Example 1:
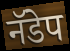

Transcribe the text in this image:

नॅडेप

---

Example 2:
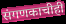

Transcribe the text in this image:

संगणकाचीही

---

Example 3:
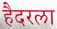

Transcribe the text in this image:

हैदरला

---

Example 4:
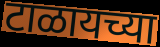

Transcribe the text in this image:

टाळायच्या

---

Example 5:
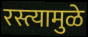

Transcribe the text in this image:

रस्त्यामुळे